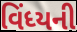
વિંધ્યની